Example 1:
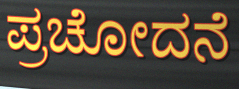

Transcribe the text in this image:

ಪ್ರಚೋದನೆ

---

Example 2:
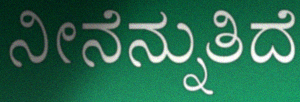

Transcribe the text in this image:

ನೀನೆನ್ನುತಿದೆ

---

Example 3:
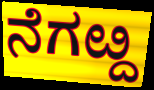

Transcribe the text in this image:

ನೆಗೞ್ದ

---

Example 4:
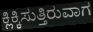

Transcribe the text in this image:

ಕ್ಲಿಕ್ಕಿಸುತ್ತಿರುವಾಗ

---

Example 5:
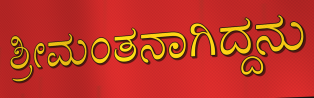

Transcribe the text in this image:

ಶ್ರೀಮಂತನಾಗಿದ್ದನು